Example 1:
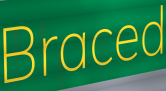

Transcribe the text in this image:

Braced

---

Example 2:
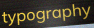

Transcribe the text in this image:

typography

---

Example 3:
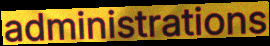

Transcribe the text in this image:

administrations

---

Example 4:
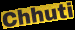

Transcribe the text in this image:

Chhuti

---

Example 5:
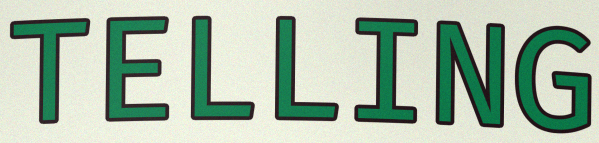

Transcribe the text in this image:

TELLING